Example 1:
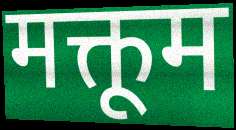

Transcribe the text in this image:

मक्तूम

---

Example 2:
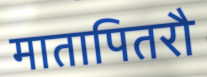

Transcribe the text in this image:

मातापितरौ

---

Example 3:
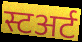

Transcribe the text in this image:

स्टअर्ट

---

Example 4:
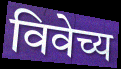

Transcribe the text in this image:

विवेच्य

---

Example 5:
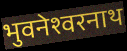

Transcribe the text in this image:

भुवनेश्वरनाथ